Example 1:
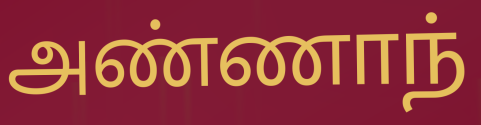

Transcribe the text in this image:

அண்ணாந்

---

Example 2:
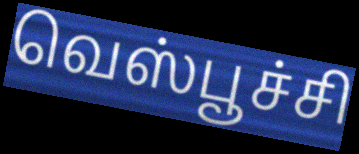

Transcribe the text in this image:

வெஸ்பூச்சி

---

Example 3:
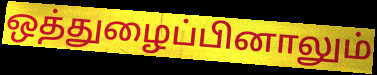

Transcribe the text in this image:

ஒத்துழைப்பினாலும்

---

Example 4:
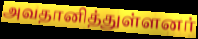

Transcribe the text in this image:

அவதானித்துள்ளனர்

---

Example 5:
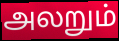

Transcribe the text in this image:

அலறும்